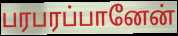
பரபரப்பானேன்